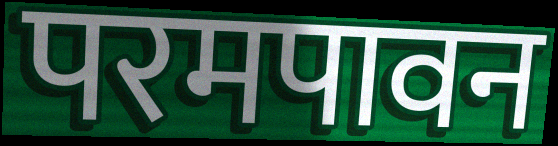
परमपावन